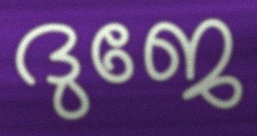
ദുജേ